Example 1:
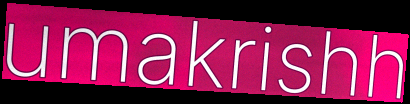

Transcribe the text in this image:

umakrishh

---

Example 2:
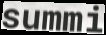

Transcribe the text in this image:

summi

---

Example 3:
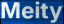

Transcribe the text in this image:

Meity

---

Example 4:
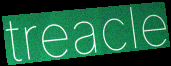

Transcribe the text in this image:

treacle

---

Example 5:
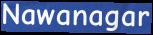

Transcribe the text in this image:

Nawanagar